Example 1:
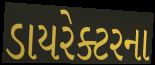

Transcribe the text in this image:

ડાયરેક્ટરના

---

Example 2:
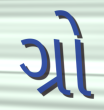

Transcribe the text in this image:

ગ્રો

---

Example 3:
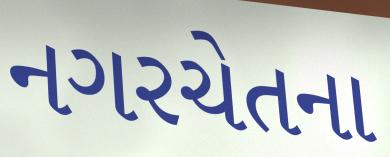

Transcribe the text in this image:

નગરચેતના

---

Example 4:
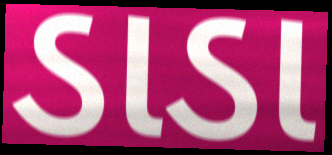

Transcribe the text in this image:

ડાડા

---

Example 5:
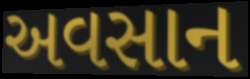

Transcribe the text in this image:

અવસાન